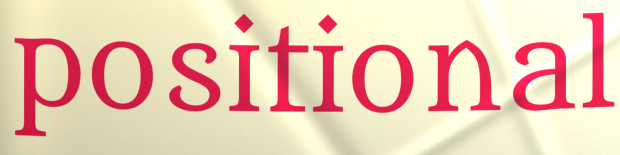
positional